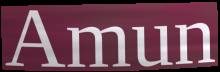
Amun